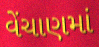
વેંચાણમાં